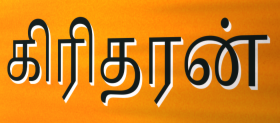
கிரிதரன்